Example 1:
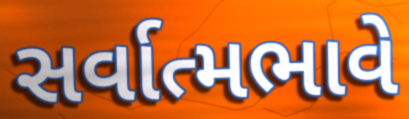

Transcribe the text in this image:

સર્વાત્મભાવે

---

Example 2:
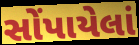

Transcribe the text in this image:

સોંપાયેલાં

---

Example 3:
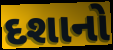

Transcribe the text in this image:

દશાનો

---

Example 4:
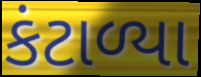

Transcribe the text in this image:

કંટાળ્યા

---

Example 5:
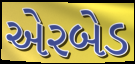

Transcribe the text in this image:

એરબેડ